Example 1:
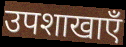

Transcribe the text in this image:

उपशाखाएँ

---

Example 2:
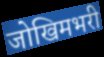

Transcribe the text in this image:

जोखिमभरी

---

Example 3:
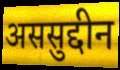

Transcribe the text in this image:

अससुद्दीन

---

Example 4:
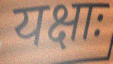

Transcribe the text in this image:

यक्षाः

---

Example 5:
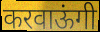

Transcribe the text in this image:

करवाऊंगी